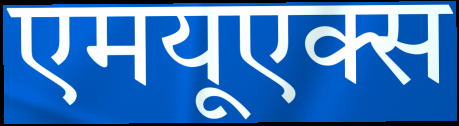
एमयूएक्स